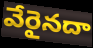
వేరైనదా